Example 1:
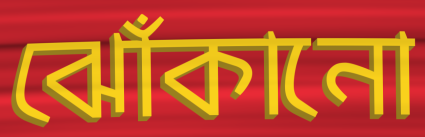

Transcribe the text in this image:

ঝোঁকানো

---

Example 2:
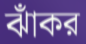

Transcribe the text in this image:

ঝাঁকর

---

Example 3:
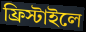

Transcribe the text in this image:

ফ্রিস্টাইলে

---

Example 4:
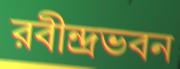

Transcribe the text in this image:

রবীন্দ্রভবন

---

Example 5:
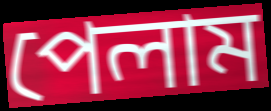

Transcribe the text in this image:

পেলাম